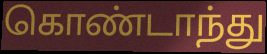
கொண்டாந்து